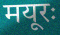
मयूरः